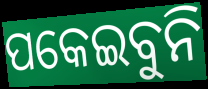
ପକେଇବୁନି